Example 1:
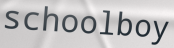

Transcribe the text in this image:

schoolboy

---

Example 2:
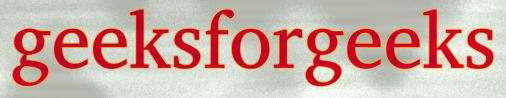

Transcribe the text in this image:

geeksforgeeks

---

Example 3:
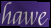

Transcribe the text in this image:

hawe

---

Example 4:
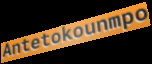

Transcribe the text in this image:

Antetokounmpo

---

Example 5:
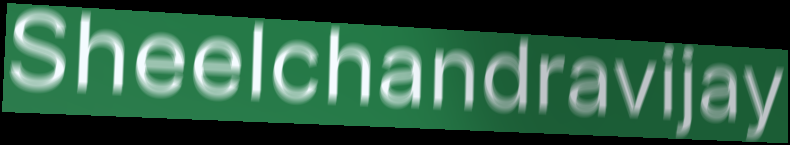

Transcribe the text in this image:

Sheelchandravijay